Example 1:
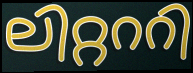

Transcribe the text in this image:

ലിറ്റററി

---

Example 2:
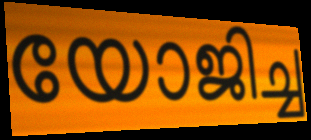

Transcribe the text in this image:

യോജിച്ച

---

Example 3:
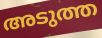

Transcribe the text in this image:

അടുത്ത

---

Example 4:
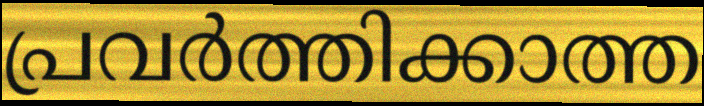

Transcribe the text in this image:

പ്രവർത്തിക്കാത്ത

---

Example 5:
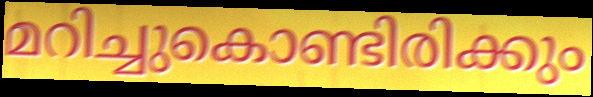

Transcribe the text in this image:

മറിച്ചുകൊണ്ടിരിക്കും